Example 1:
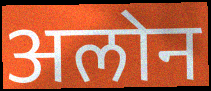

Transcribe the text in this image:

अलोन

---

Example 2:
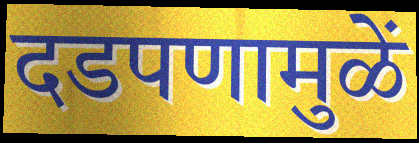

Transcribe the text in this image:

दडपणामुळें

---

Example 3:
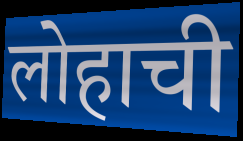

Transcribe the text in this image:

लोहाची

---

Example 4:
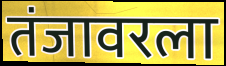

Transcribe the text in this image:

तंजावरला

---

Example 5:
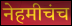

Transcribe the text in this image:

नेहमीचंच